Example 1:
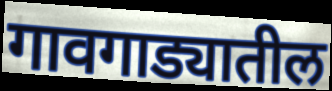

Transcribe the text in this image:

गावगाड्यातील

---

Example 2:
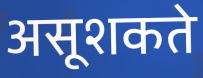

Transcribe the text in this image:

असूशकते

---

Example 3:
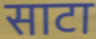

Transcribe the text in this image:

साटा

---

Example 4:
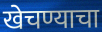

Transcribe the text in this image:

खेचण्याचा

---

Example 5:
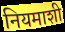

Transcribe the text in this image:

नियमाशी